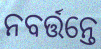
ନବର୍ତ୍ତନ୍ତେ